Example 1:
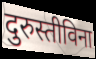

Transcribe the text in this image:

दुरुस्तीविना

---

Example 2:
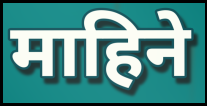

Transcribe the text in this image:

माहिने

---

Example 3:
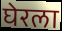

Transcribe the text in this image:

घेरला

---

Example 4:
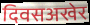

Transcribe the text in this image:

दिवसअखेर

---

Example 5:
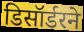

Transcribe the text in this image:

डिसॉर्डरने